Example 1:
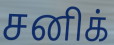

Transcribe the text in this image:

சனிக்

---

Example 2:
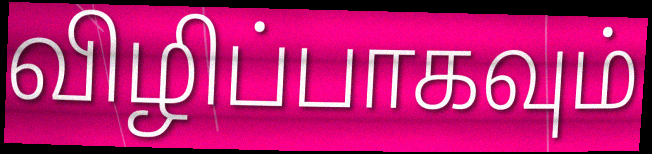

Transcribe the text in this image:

விழிப்பாகவும்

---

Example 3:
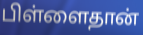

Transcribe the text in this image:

பிள்ளைதான்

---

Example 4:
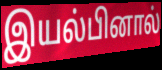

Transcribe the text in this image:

இயல்பினால்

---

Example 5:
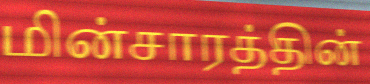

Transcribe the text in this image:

மின்சாரத்தின்